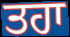
ਤਹਾ